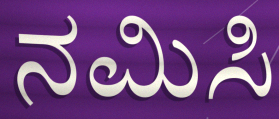
ನಮಿಸಿ